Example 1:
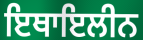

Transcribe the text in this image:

ਇਥਾਇਲੀਨ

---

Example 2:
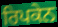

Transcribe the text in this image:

ਰਿਪਕੇਨ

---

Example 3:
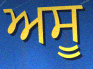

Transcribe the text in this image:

ਅਸੂ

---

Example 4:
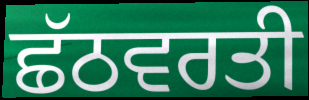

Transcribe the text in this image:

ਛੱਠਵਰਤੀ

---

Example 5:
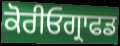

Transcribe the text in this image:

ਕੋਰੀਓਗ੍ਰਾਫਡ